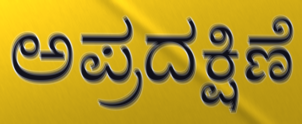
ಅಪ್ರದಕ್ಷಿಣೆ